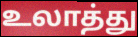
உலாத்து